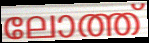
ലോത്ത്